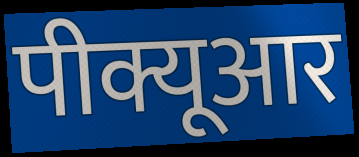
पीक्यूआर